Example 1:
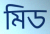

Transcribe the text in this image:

মিড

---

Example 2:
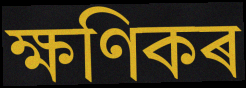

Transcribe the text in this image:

ক্ষণিকৰ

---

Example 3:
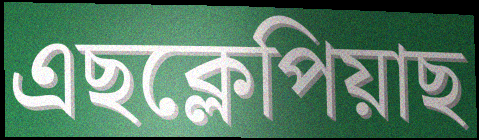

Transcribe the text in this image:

এছক্লেপিয়াছ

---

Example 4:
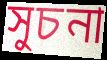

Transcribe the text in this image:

সুচনা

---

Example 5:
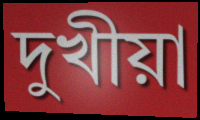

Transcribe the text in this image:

দুখীয়া